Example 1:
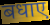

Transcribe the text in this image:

बधाए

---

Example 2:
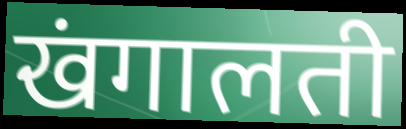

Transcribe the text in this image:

खंगालती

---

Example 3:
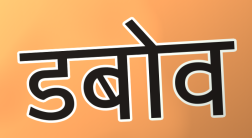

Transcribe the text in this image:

डबोव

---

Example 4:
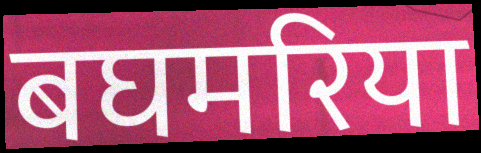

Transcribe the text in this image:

बघमरिया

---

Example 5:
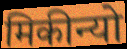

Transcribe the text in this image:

मिकीन्यो